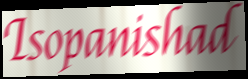
Isopanishad